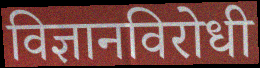
विज्ञानविरोधी